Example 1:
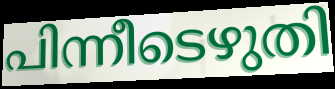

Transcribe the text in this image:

പിന്നീടെഴുതി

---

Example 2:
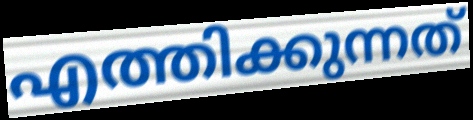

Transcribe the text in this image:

എത്തിക്കുന്നത്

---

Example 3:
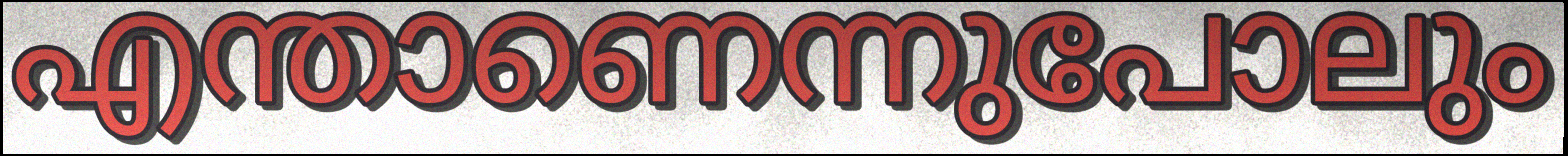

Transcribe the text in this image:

എന്താണെന്നുപോലും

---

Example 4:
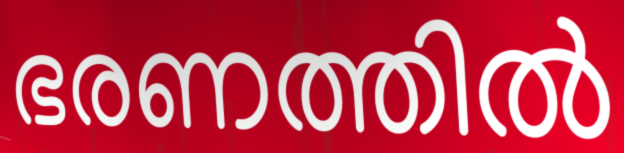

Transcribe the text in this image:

ഭരണത്തിൽ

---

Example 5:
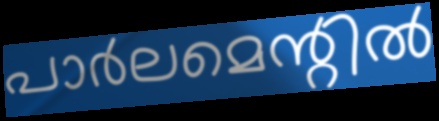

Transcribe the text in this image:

പാർലമെന്റിൽ